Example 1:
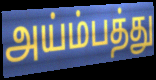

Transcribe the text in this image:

அய்ம்பத்து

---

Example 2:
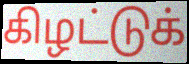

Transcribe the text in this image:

கிழட்டுக்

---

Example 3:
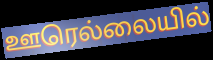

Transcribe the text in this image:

ஊரெல்லையில்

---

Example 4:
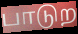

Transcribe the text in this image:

பாடுற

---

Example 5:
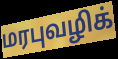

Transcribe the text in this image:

மரபுவழிக்